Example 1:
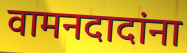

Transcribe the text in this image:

वामनदादांना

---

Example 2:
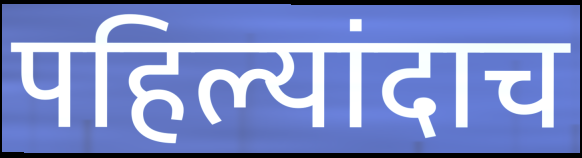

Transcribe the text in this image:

पहिल्यांदाच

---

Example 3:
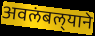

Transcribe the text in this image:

अवलंबल्याने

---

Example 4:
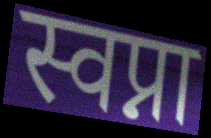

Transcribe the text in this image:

स्वप्ना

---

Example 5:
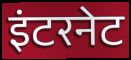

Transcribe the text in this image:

इंटरनेट